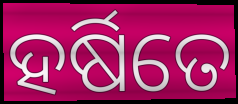
ହର୍ଷିତେ